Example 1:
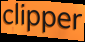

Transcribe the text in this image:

clipper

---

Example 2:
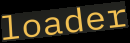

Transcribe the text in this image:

loader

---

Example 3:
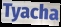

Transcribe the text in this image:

Tyacha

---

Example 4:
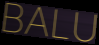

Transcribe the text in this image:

BALU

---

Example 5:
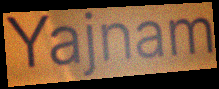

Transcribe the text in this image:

Yajnam